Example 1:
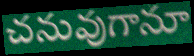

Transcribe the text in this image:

చనువుగానూ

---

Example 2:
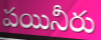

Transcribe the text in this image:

పయినీరు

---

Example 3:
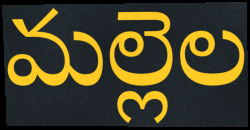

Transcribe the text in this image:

మల్లెల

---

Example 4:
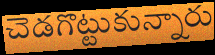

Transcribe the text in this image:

చెడగొట్టుకున్నారు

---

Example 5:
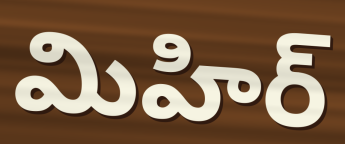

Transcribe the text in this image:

మిహిర్